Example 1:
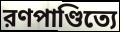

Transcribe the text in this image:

রণপাণ্ডিত্যে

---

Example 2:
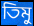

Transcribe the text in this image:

তিমু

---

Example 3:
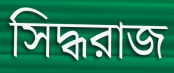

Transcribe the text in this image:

সিদ্ধরাজ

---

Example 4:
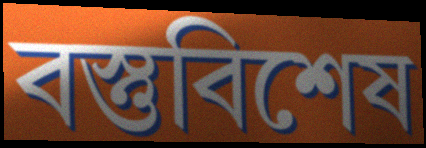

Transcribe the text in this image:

বস্তুবিশেষ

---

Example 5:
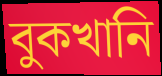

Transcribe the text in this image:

বুকখানি